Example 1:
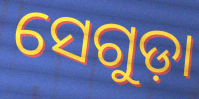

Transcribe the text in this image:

ସେଗୁଡ଼ା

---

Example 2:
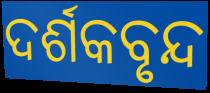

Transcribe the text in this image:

ଦର୍ଶକବୃନ୍ଦ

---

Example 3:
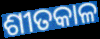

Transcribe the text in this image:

ଶୀତକାଳ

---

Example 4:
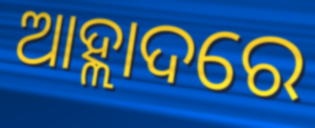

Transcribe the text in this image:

ଆହ୍ଲାଦରେ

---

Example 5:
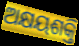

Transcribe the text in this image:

ଅକ୍ଷୟଶକ୍ତି